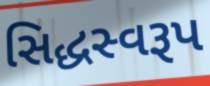
સિદ્ધસ્વરૂપ